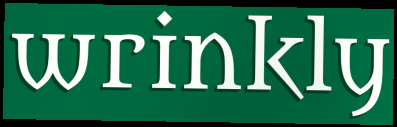
wrinkly